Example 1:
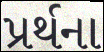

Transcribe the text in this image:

પ્રર્થના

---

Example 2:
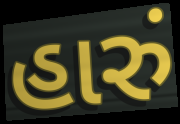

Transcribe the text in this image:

હારું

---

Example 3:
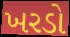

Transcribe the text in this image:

ખરડો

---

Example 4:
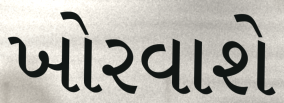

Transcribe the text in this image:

ખોરવાશે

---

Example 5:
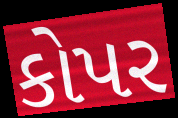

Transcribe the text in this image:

કોપર